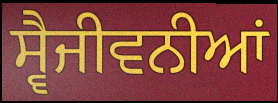
ਸ੍ਵੈਜੀਵਨੀਆਂ